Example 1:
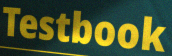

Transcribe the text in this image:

Testbook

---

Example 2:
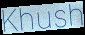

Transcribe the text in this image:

Khush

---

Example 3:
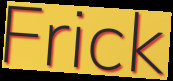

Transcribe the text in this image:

Frick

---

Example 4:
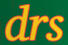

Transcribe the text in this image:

drs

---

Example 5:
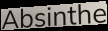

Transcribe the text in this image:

Absinthe